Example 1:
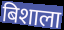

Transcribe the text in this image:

बिशाला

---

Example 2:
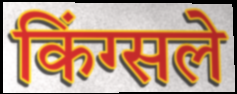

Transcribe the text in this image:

किंग्सले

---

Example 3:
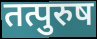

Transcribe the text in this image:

तत्पुरुष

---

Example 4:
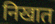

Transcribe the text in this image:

निखात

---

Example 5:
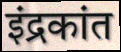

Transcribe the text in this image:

इंद्रकांत